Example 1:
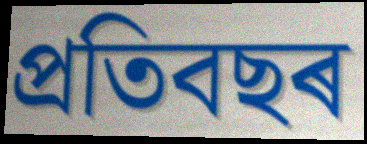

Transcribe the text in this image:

প্ৰতিবছৰ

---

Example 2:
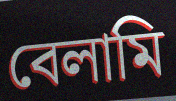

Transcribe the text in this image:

বেলামি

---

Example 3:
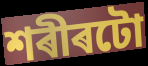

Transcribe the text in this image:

শৰীৰটো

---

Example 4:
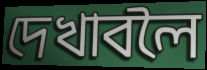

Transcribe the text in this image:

দেখাবলৈ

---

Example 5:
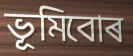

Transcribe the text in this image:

ভূমিবোৰ